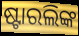
ଷ୍ଟାରଲିଙ୍କ